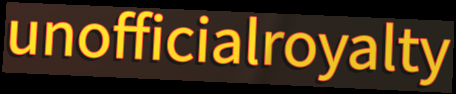
unofficialroyalty